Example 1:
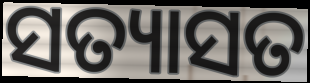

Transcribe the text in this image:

ସତ୍ୟାସତ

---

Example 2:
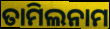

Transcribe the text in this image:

ତାମିଲନାମ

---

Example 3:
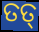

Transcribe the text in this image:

ତତ୍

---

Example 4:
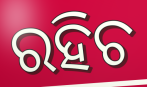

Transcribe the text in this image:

ରହିଚ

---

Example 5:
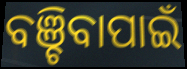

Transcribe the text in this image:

ବଞ୍ଚିବାପାଇଁ